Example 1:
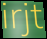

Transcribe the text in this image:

irjt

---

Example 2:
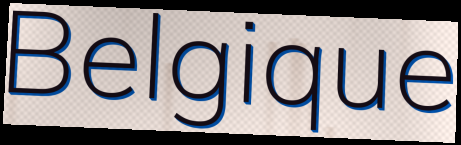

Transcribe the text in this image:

Belgique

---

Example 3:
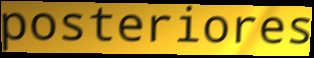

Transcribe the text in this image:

posteriores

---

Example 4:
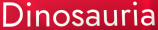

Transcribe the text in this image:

Dinosauria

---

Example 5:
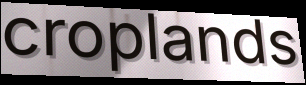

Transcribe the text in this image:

croplands